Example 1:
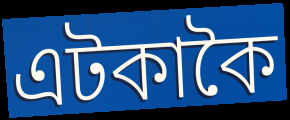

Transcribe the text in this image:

এটকাকৈ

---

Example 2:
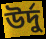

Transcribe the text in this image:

উৰ্দু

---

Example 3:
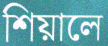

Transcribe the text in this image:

শিয়ালে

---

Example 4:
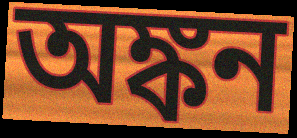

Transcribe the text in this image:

অঙ্কন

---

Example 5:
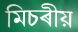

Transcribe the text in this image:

মিচৰীয়